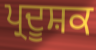
ਪ੍ਰਦੂਸ਼ਕ